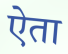
ऐता